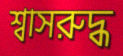
শ্বাসরুদ্ধ